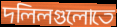
দলিলগুলোতে